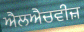
ਐਲਐਚਵੀਜ਼